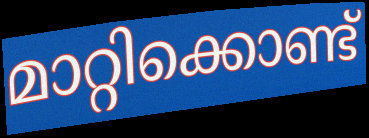
മാറ്റിക്കൊണ്ട്